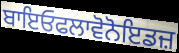
ਬਾਇਓਫਲਾਵੋਨੋਇਡਜ਼